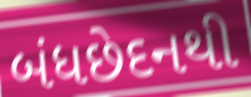
બંધછેદનથી